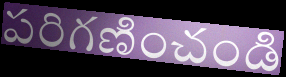
పరిగణించండి